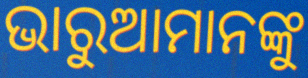
ଭାରୁଆମାନଙ୍କୁ